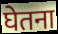
घेतना